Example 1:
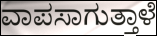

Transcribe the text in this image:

ವಾಪಸಾಗುತ್ತಾಳೆ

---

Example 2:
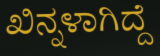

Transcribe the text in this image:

ಖಿನ್ನಳಾಗಿದ್ದೆ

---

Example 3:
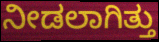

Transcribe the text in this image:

ನೀಡಲಾಗಿತ್ತು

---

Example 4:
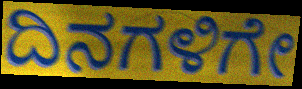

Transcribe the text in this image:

ದಿನಗಳಿಗೇ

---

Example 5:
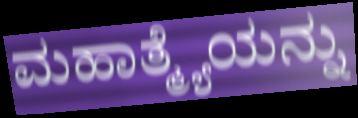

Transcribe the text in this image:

ಮಹಾತ್ಮ್ಯೆಯನ್ನು